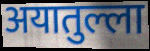
अयातुल्‍ला